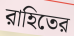
রাহিতের